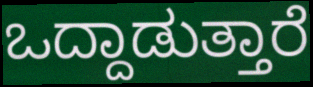
ಒದ್ದಾಡುತ್ತಾರೆ